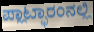
ಪ್ಲಾಟ್ಫಾರಂನಲ್ಲಿ